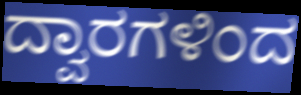
ದ್ವಾರಗಳಿಂದ